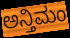
ಅನ್ತಿಮಂ